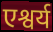
एश्वर्य